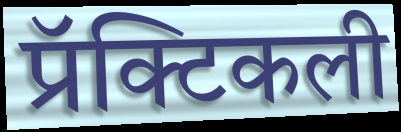
प्रॅक्टिकली